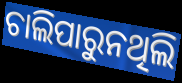
ଚାଲିପାରୁନଥିଲି